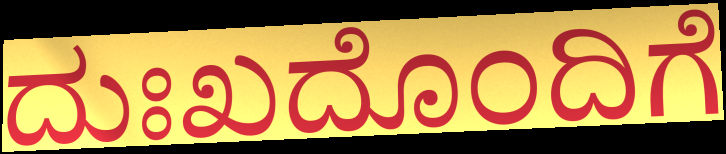
ದುಃಖದೊಂದಿಗೆ